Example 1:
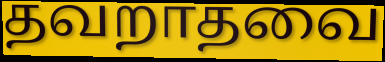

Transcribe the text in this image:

தவறாதவை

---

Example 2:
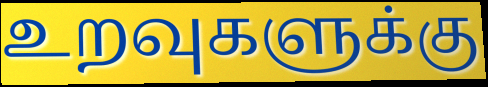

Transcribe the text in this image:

உறவுகளுக்கு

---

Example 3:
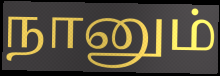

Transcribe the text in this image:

நானும்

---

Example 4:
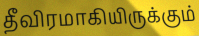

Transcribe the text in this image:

தீவிரமாகியிருக்கும்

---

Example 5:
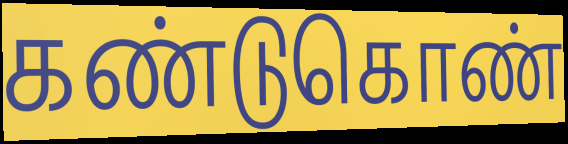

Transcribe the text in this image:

கண்டுகொண்